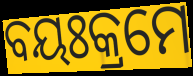
ବୟଃକ୍ରମେ